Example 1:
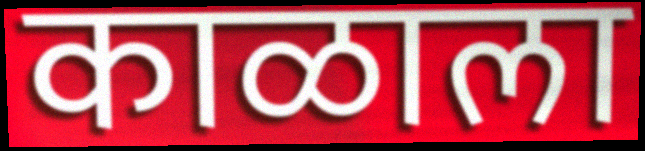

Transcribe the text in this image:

काळाला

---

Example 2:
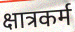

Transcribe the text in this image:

क्षात्रकर्म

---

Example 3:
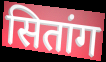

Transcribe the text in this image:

सितांग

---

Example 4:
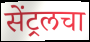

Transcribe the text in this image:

सेंट्रलचा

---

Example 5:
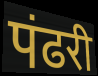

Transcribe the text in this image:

पंढरी